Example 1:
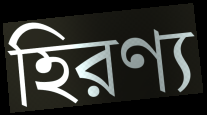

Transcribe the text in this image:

হিরণ্য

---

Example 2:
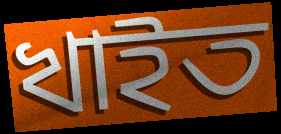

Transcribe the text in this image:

খাইত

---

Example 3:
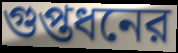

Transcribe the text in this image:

গুপ্তধনের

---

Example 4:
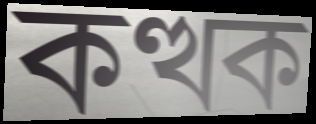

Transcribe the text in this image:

কত্থক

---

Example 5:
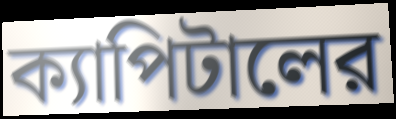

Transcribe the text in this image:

ক্যাপিটালের